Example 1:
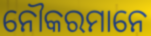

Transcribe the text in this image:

ନୌକରମାନେ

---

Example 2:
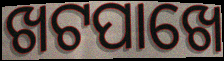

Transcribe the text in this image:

ଖଟପାଖେ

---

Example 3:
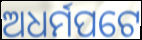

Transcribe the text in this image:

ଅଧର୍ମପଟେ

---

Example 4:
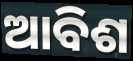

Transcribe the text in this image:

ଆବିଶ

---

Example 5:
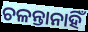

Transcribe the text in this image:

ଚଳନ୍ତାନାହିଁ